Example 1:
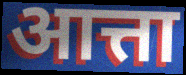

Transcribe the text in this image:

आत्ता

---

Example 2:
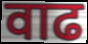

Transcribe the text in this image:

वाढ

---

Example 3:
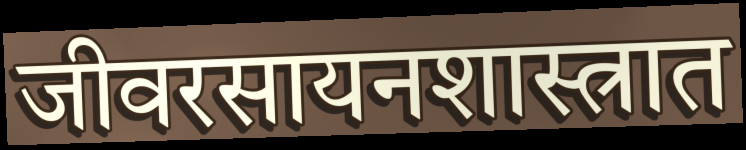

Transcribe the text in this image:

जीवरसायनशास्त्रात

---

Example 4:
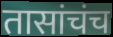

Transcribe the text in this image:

तासांचंच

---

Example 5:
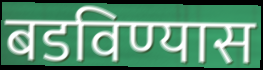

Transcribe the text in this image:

बडविण्यास